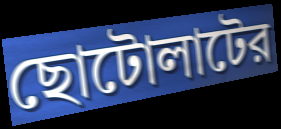
ছোটোলাটের